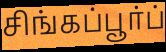
சிங்கப்பூர்ப்